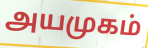
அயமுகம்